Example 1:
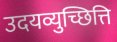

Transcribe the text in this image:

उदयव्युच्छित्ति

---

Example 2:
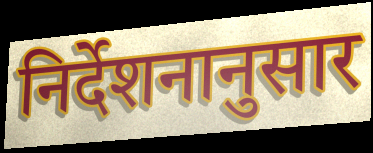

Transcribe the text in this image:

निर्देशनानुसार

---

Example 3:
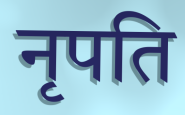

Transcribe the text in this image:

नृपति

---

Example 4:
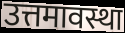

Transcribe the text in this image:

उत्तमावस्था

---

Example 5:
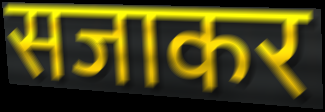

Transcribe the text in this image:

सजाकर